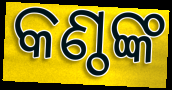
କଣ୍ଠଙ୍କ